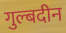
गुल्बदीन